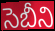
సెబీని